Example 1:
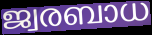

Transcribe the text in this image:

ജ്വരബാധ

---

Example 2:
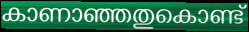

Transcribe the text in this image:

കാണാഞ്ഞതുകൊണ്ട്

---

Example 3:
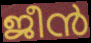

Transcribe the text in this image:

ജീൻ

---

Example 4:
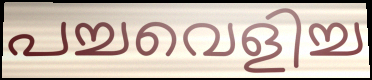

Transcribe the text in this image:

പച്ചവെളിച്ച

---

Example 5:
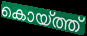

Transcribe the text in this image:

കൊയ്ത്ത്